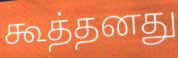
கூத்தனது